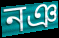
নঞ